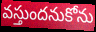
వస్తుందనుకోను